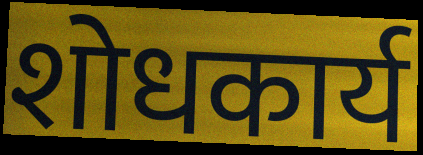
शोधकार्य